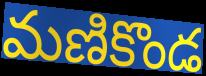
మణికొండ